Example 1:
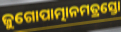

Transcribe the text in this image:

ଜୁଗୋପାତ୍ମାନମତ୍ରସ୍ତୋ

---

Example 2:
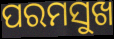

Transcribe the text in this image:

ପରମସୁଖ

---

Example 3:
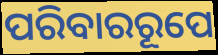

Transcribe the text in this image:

ପରିବାରରୂପେ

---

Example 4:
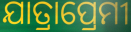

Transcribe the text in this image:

ଯାତ୍ରାପ୍ରେମୀ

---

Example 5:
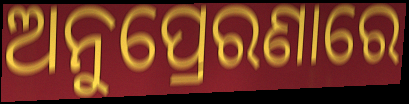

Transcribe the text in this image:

ଅନୁପ୍ରେରଣାରେ